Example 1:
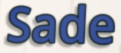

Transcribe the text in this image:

Sade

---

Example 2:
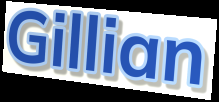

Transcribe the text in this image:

Gillian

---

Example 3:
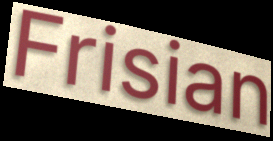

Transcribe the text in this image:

Frisian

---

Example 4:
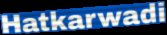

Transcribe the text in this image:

Hatkarwadi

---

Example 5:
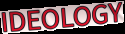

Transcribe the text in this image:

IDEOLOGY